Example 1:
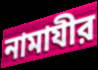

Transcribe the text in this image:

নামাযীর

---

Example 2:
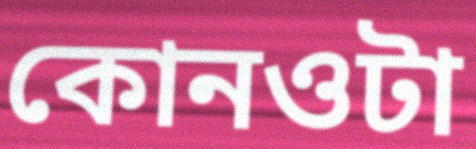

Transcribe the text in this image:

কোনওটা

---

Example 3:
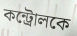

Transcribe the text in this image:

কন্ট্রোলকে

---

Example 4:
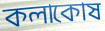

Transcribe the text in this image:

কলাকোষ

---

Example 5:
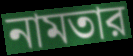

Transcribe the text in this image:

নামতার